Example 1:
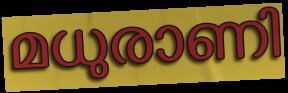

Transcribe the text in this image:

മധുരാണി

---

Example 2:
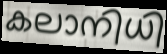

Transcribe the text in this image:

കലാനിധി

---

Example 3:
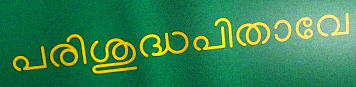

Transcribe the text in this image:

പരിശുദ്ധപിതാവേ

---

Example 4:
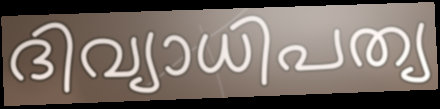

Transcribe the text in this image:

ദിവ്യാധിപത്യ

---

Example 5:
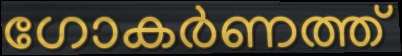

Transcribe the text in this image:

ഗോകർണത്ത്